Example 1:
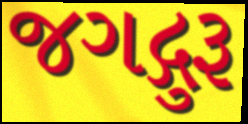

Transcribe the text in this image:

જગદ્ગુરૂ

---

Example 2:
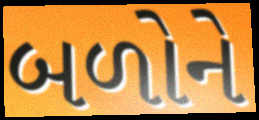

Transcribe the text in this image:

બળોને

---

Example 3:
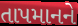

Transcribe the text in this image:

તાપમાનને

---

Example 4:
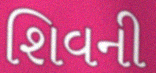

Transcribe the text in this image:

શિવની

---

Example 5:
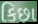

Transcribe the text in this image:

કિછા